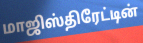
மாஜிஸ்திரேட்டின்